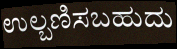
ಉಲ್ಬಣಿಸಬಹುದು